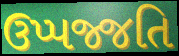
ઉપ્પજ્જતિ